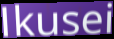
Ikusei